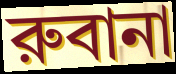
রুবানা